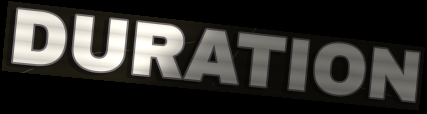
DURATION